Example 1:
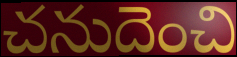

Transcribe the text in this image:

చనుదెంచి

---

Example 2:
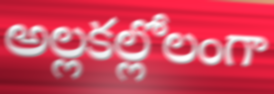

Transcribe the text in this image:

అల్లకల్లోలంగా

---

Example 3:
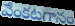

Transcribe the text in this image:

వేంకటగానం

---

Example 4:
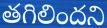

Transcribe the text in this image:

తగిలిందని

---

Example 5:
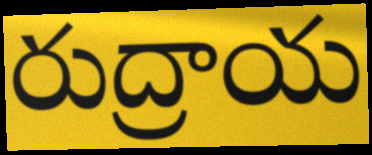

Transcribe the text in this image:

రుద్రాయ